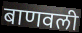
बाणवली